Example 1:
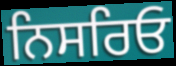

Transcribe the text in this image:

ਨਿਸਰਿਓ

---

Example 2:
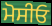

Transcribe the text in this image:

ਮੋਸੀਓ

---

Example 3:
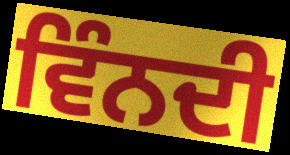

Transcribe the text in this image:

ਵਿੰਨਦੀ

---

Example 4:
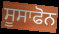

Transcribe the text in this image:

ਸੂਸਾਫੋਨ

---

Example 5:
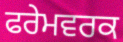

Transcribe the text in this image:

ਫਰੇਮਵਰਕ